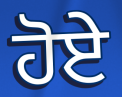
ਹੋਏੇ